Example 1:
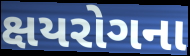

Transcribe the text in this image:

ક્ષયરોગના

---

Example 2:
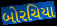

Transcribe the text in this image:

બોરચિયા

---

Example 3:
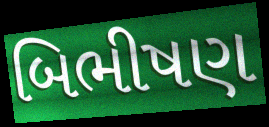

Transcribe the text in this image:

બિભીષણ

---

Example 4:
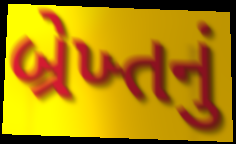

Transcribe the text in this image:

બ્રેખ્તનું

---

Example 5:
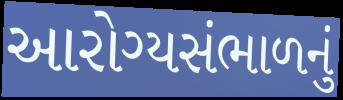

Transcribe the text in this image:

આરોગ્યસંભાળનું